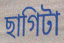
ছাগিটা